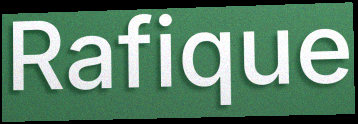
Rafique